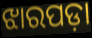
ଝାରପଡ଼ା